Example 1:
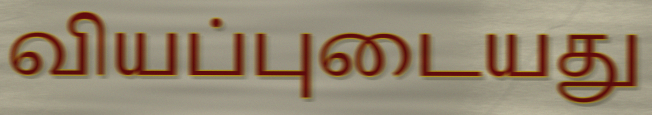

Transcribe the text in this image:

வியப்புடையது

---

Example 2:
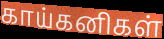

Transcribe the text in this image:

காய்கனிகள்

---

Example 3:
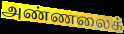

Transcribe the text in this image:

அண்ணலைக்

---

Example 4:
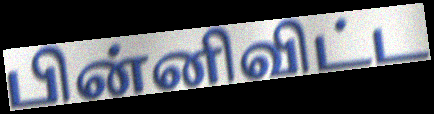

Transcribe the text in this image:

பின்னிவிட்ட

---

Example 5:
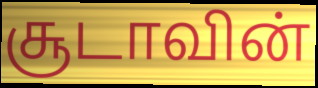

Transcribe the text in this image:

சூடாவின்